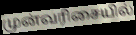
முன்வரிசையில்